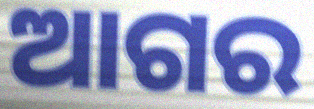
ଆଗର